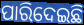
ପାରିଦେଇଛି